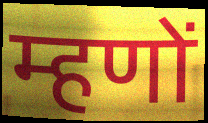
म्हणों